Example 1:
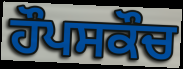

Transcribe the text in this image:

ਹੌਪਸਕੌਚ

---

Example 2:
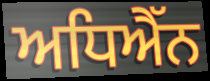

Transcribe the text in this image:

ਅਧਿਐੱਨ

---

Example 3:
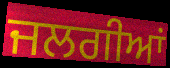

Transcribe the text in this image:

ਜਲਗੀਆਂ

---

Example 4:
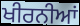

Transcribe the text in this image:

ਖੀਰਨੀਆਂ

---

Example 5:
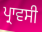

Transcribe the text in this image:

ਪ੍ਰਾਵਸੀ